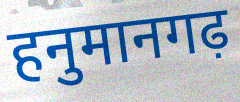
हनुमानगढ़